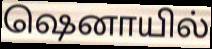
ஷெனாயில்